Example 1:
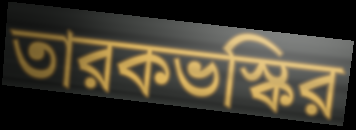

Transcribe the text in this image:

তারকভস্কির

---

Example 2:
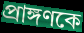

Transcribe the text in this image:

প্রাঙ্গণকে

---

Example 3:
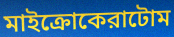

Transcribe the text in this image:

মাইক্রোকেরাটোম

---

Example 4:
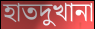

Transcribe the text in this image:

হাতদুখানা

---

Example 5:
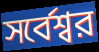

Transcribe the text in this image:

সর্বেশ্বর